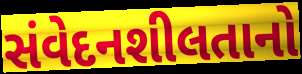
સંવેદનશીલતાનો